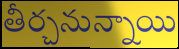
తీర్చనున్నాయి